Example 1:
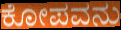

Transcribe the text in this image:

ಕೋಪವನು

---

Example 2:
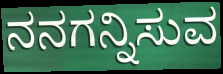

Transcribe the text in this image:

ನನಗನ್ನಿಸುವ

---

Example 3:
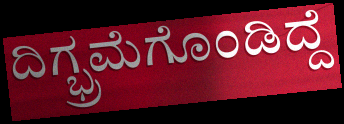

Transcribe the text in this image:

ದಿಗ್ಭ್ರಮೆಗೊಂಡಿದ್ದೆ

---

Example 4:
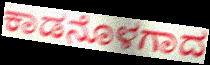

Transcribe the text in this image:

ಕಾಡನೊಳಗಾದ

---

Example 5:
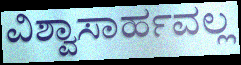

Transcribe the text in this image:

ವಿಶ್ವಾಸಾರ್ಹವಲ್ಲ